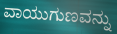
ವಾಯುಗುಣವನ್ನು